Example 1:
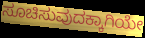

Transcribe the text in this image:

ಸೂಚಿಸುವುದಕ್ಕಾಗಿಯೇ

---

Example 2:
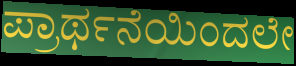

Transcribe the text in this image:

ಪ್ರಾರ್ಥನೆಯಿಂದಲೇ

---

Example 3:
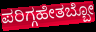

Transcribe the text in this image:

ಪರಿಗ್ಗಹೇತಬ್ಬೋ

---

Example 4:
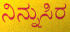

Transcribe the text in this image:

ನಿನ್ನುಸಿರ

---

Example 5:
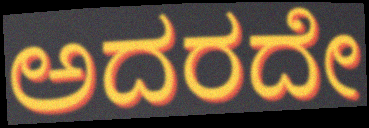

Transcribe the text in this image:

ಅದರದೇ